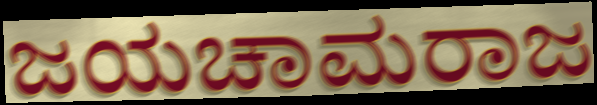
ಜಯಚಾಮರಾಜ